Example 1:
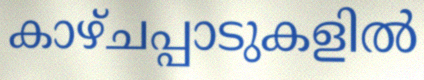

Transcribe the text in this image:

കാഴ്ചപ്പാടുകളിൽ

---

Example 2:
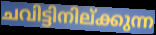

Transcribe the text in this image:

ചവിട്ടിനില്ക്കുന്ന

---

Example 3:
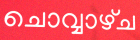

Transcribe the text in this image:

ചൊവ്വാഴ്‌ച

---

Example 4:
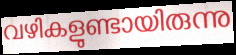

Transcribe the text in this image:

വഴികളുണ്ടായിരുന്നു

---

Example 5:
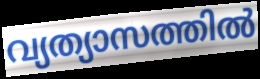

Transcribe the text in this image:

വ്യത്യാസത്തിൽ